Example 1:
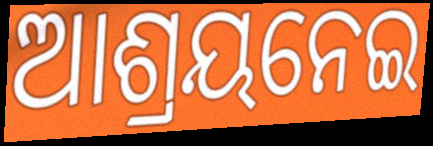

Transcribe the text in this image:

ଆଶ୍ରୟନେଇ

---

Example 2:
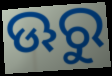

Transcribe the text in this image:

ଊରୁ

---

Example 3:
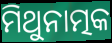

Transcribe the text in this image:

ମିଥୁନାତ୍ମକ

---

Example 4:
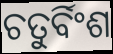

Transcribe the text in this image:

ଚତୁର୍ବିଂଶ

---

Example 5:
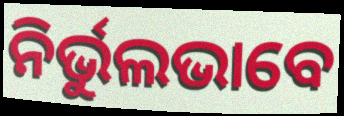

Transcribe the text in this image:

ନିର୍ଭୁଲଭାବେ